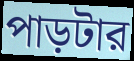
পাড়টার